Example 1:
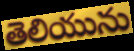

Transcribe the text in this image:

తెలియును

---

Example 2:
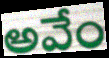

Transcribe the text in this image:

అవేం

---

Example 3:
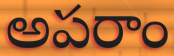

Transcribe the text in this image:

అపరాం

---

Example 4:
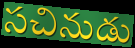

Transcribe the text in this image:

సచినుడు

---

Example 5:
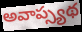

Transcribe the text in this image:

అవాప్స్యథ